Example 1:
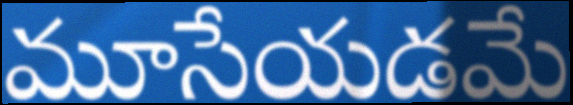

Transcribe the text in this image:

మూసేయడమే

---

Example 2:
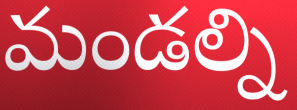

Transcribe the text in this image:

మండల్ని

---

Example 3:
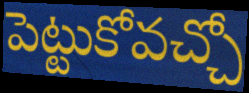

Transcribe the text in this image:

పెట్టుకోవచ్చో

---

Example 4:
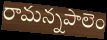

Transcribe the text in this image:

రామన్నపాలెం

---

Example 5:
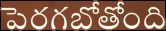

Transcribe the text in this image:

పెరగబోతోంది